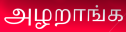
அழறாங்க